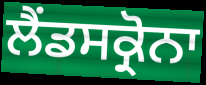
ਲੈਂਡਸਕ੍ਰੋਨਾ